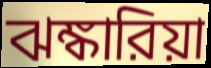
ঝঙ্কারিয়া